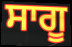
ਸਾਗੂ